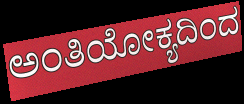
ಅಂತಿಯೋಕ್ಯದಿಂದ